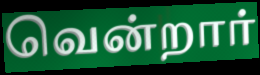
வென்றார்